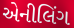
એનીલિંગ